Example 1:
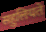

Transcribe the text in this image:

सहुलियते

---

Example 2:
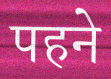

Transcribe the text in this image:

पहने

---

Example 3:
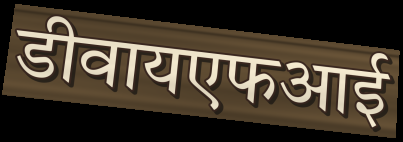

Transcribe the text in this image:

डीवायएफआई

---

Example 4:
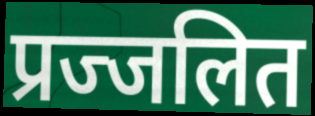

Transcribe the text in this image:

प्रज्जलित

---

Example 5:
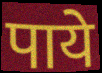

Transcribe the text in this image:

पाये